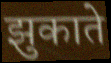
झुकाते